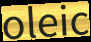
oleic